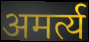
अमर्त्य